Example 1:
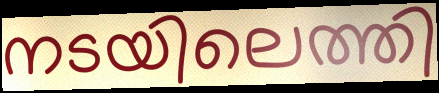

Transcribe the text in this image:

നടയിലെത്തി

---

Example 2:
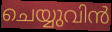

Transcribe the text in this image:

ചെയ്യുവിൻ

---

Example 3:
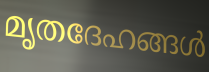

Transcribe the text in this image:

മൃതദേഹങ്ങൾ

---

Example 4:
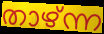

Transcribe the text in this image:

താഴ്ന്ന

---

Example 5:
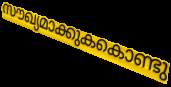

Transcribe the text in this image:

സൗഖ്യമാക്കുകകൊണ്ടു